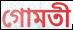
গোমতী